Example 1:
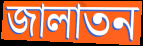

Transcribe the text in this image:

জালাতন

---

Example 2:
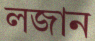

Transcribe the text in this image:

লজান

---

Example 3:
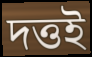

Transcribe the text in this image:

দত্তই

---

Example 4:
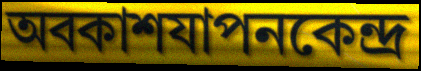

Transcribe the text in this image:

অবকাশযাপনকেন্দ্র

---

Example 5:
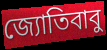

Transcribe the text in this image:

জ্যোতিবাবু